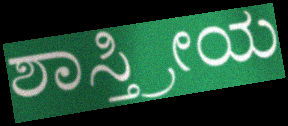
ಶಾಸ್ತ್ರೀಯ